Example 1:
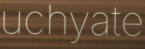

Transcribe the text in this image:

uchyate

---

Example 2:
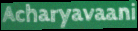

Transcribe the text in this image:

Acharyavaani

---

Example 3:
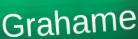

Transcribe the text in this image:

Grahame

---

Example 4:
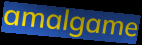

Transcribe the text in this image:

amalgame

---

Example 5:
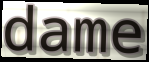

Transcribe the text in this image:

dame